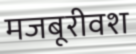
मजबूरीवश